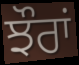
ਝੌਰਾਂ